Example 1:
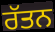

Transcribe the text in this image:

ਰੱਤਨ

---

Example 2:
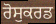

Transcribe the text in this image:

ਰੋਸੁਕਰਡ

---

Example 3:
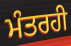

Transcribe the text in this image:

ਮੰਤਰਹੀ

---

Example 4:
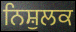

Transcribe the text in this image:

ਨਿਸ਼ੁਲਕ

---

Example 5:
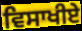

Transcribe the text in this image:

ਵਿਸਾਖੀਏੇ